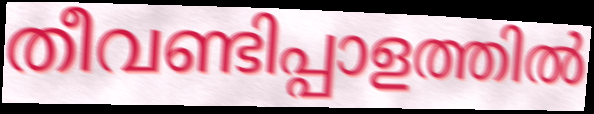
തീവണ്ടിപ്പാളത്തിൽ